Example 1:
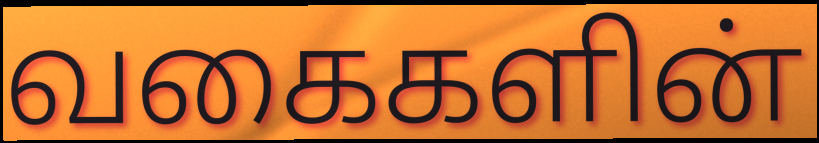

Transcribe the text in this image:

வகைகளின்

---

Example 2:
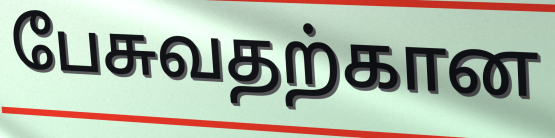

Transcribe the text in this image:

பேசுவதற்கான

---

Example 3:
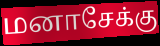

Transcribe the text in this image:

மனாசேக்கு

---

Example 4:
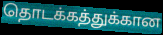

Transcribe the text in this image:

தொடக்கத்துக்கான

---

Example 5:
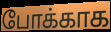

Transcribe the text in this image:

போக்காக